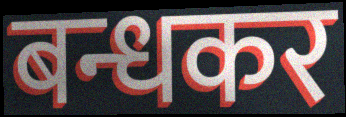
बन्धकर